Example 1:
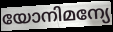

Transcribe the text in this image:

യോനിമന്യേ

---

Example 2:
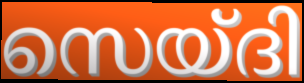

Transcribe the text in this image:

സെയ്ദി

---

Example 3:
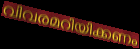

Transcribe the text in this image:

വിവരമറിയിക്കണം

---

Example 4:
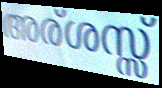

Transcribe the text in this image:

അര്ശസ്സ്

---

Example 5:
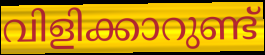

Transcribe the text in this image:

വിളിക്കാറുണ്ട്